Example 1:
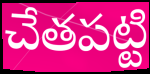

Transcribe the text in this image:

చేతపట్టి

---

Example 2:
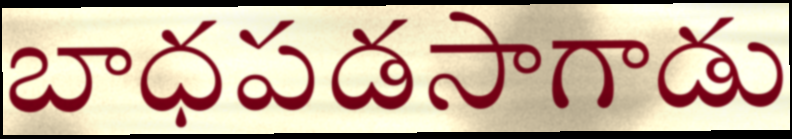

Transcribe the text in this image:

బాధపడసాగాడు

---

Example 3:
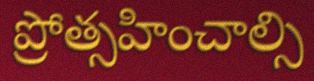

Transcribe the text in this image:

ప్రోత్సహించాల్సి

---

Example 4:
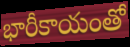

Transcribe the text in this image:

భారీకాయంతో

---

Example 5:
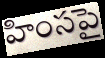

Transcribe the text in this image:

హింసపై